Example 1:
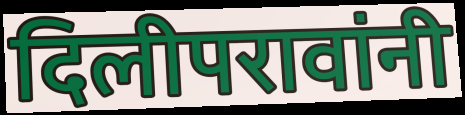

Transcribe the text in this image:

दिलीपरावांनी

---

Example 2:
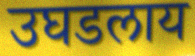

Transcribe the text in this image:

उघडलाय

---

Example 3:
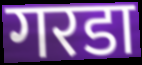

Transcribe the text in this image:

गरडा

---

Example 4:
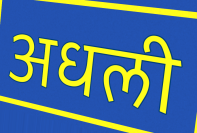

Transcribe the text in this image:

अधली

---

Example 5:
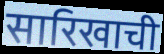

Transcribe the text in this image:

सारिखाची